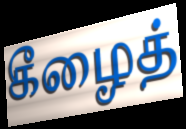
கீழைத்